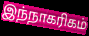
இந்நாகரிகம்